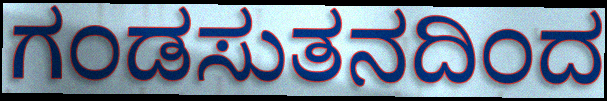
ಗಂಡಸುತನದಿಂದ